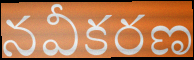
నవీకరణ